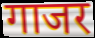
गाजर